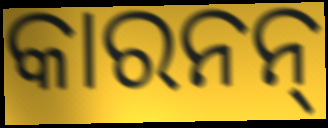
କାରନନ୍